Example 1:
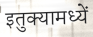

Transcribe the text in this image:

इतुक्यामध्यें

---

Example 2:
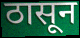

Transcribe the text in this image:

ठासून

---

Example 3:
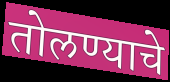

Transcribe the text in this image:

तोलण्याचे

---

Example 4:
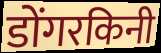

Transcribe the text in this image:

डोंगरकिनी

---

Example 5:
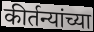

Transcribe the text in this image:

कीर्तन्यांच्या